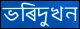
ভৰিদুখন